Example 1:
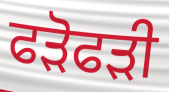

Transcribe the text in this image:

ਫੜੋਫੜੀ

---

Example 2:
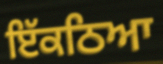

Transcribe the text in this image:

ਇੱਕਠਿਆ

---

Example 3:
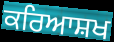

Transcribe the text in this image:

ਕਰਿਆਸ਼ਖ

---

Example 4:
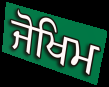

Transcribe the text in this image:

ਜੋਖਿਮ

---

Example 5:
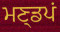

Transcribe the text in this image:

ਮਣ੍ਡਪਂ